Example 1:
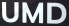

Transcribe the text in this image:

UMD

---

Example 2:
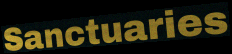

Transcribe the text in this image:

Sanctuaries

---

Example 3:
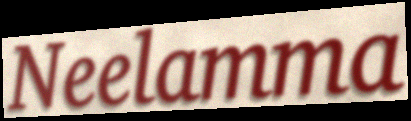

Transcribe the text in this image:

Neelamma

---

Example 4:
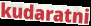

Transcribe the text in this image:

kudaratni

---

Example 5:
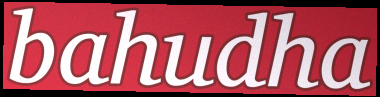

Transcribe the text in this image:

bahudha